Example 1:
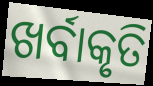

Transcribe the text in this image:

ଖର୍ବାକୃତି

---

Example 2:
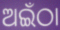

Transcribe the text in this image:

ଅଇଁଠା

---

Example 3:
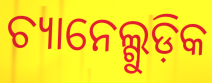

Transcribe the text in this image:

ଚ୍ୟାନେଲ୍ଗୁଡ଼ିକ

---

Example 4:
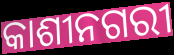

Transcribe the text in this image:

କାଶୀନଗରୀ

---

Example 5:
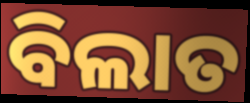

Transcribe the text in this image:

ବିଲାତ